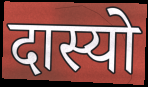
दास्यो